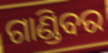
ଗାଣ୍ଡିବର